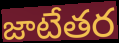
జాటేతర